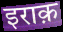
इराक़